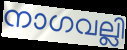
നാഗവല്ലി